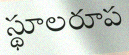
స్థూలరూప